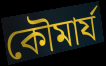
কৌমার্য